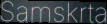
Samskrta